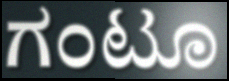
ಗಂಟೂ